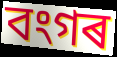
বংগৰ